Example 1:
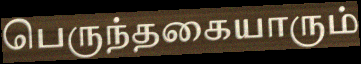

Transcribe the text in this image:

பெருந்தகையாரும்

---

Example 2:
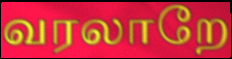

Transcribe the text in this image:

வரலாறே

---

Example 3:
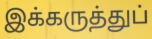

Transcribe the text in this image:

இக்கருத்துப்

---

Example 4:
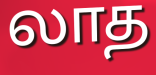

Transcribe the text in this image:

லாத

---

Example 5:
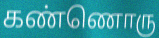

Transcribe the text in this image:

கண்ணொரு